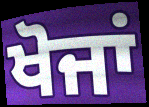
ਖੋਜਾਂ